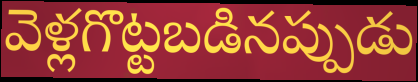
వెళ్లగొట్టబడినప్పుడు